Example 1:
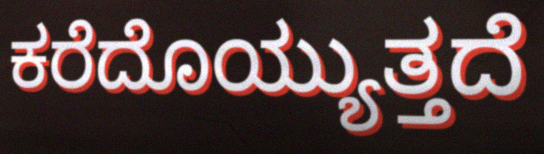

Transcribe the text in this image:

ಕರೆದೊಯ್ಯುತ್ತದೆ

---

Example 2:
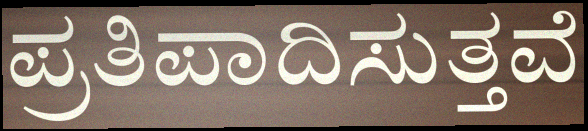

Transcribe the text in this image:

ಪ್ರತಿಪಾದಿಸುತ್ತವೆ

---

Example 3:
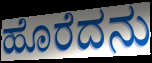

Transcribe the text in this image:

ಹೊರೆದನು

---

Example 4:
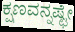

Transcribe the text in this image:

ಕ್ಷಣವನ್ನಷ್ಟೇ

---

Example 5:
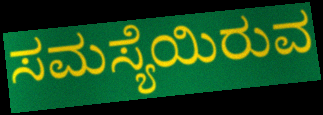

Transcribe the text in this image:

ಸಮಸ್ಯೆಯಿರುವ